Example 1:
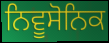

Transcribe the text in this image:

ਨਿਵੂਸੋਨਿਕ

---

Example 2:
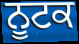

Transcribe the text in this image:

ਨੂਟਕ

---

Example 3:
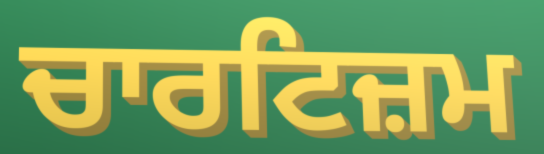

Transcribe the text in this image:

ਚਾਰਟਿਜ਼ਮ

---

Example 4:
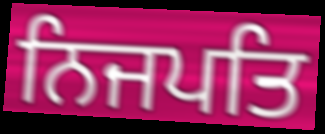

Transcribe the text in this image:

ਨਿਜਪਤਿ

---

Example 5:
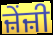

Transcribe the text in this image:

ਜ਼ੇਂਜ਼ੀ